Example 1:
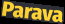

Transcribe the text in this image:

Parava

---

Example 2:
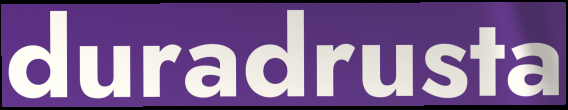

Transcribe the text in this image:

duradrusta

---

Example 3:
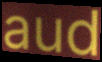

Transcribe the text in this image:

aud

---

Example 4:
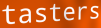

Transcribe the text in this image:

tasters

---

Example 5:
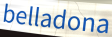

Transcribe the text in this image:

belladona